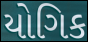
યોગિક